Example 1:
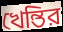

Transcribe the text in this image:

খেন্তির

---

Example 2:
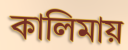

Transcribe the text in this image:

কালিমায়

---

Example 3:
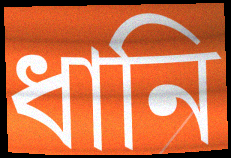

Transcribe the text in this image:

ধানি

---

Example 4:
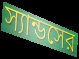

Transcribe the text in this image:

স্যান্ডসের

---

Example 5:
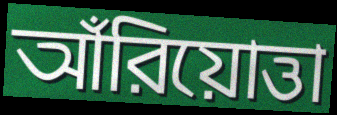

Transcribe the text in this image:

আঁরিয়োত্তা